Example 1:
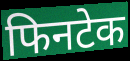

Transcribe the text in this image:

फिनटेक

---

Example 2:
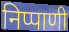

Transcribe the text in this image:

निप्पाणी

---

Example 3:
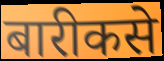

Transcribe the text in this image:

बारीकसे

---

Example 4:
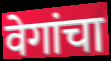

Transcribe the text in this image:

वेगांचा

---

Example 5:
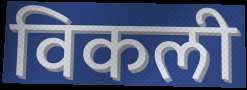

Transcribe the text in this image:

विकली